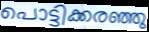
പൊട്ടിക്കരഞ്ഞു